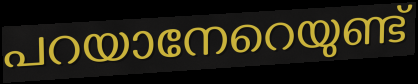
പറയാനേറെയുണ്ട്